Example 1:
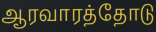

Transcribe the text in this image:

ஆரவாரத்தோடு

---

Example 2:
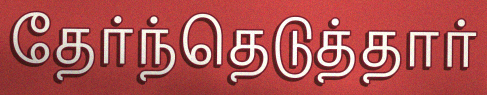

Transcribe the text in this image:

தேர்ந்தெடுத்தார்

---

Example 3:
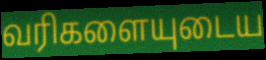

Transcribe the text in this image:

வரிகளையுடைய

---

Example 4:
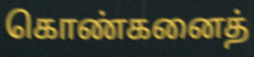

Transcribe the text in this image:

கொண்கனைத்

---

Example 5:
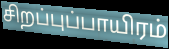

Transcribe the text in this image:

சிறப்புப்பாயிரம்